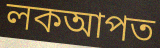
লকআপত